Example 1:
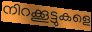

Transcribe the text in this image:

നിറക്കൂട്ടുകളെ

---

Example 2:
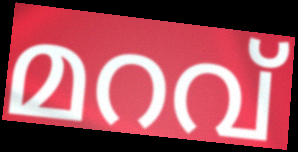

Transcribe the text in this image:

മറവ്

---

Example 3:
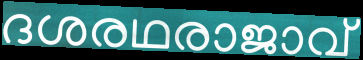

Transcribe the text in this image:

ദശരഥരാജാവ്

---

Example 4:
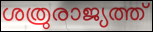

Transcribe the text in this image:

ശത്രുരാജ്യത്ത്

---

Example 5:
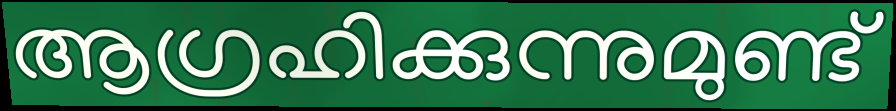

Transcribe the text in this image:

ആഗ്രഹിക്കുന്നുമുണ്ട്